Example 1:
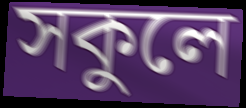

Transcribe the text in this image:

সকুলে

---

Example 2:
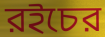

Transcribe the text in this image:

রইচের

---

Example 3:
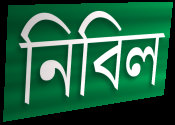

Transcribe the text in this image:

নিবিল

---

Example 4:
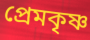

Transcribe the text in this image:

প্রেমকৃষ্ণ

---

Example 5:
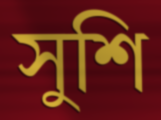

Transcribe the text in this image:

সুশি